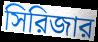
সিরিজার